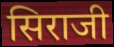
सिराजी